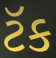
ટૅક